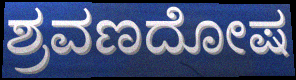
ಶ್ರವಣದೋಷ